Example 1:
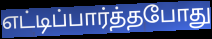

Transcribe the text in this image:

எட்டிப்பார்த்தபோது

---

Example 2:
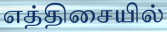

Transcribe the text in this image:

எத்திசையில்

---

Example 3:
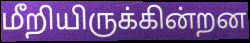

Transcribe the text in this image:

மீறியிருக்கின்றன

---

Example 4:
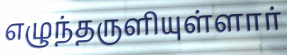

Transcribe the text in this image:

எழுந்தருளியுள்ளார்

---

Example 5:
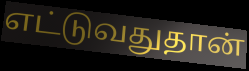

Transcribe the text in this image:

எட்டுவதுதான்